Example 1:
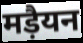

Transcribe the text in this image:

मड़ैयन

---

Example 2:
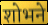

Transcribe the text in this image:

शोभने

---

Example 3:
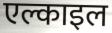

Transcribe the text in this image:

एल्काइल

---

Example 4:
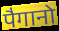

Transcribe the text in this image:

पैगानो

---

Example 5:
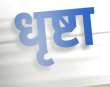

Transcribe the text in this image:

धृष्टा